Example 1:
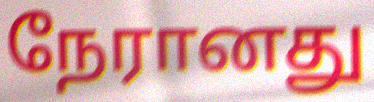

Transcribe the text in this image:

நேரானது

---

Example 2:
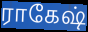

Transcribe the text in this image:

ராகேஷ்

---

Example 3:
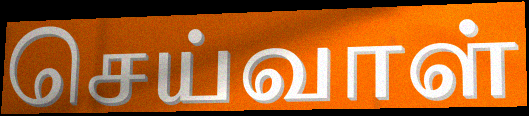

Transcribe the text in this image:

செய்வாள்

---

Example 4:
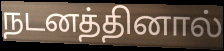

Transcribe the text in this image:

நடனத்தினால்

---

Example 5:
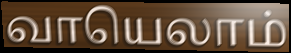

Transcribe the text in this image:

வாயெலாம்